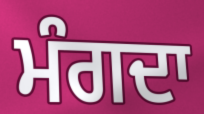
ਮੰਗਦਾ